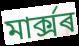
মাৰ্ক্সৰ